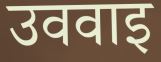
उववाइ